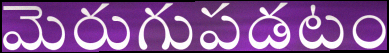
మెరుగుపడటం